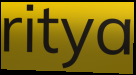
ritya